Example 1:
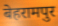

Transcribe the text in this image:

बेहरामपुर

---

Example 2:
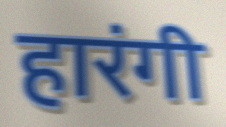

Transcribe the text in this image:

हारंगी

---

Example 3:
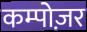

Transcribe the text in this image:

कम्पोज़र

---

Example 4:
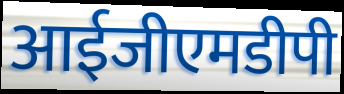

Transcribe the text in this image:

आईजीएमडीपी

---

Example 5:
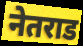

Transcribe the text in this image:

नेतराड